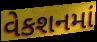
વેકશનમાં